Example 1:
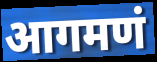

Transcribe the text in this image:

आगमणं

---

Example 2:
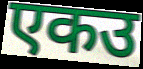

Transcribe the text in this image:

एकउ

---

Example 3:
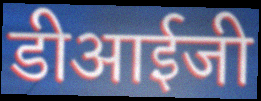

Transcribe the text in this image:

डीआईजी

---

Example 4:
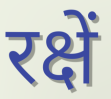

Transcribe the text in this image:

रक्षें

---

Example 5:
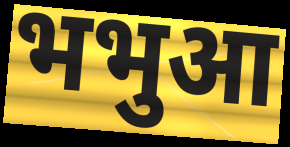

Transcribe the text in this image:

भभुआ